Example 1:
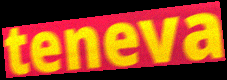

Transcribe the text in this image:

teneva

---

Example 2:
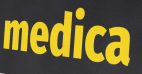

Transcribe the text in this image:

medica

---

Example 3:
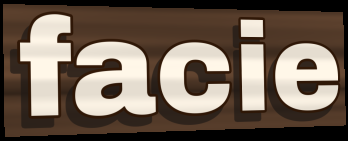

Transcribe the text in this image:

facie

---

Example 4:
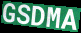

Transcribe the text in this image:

GSDMA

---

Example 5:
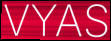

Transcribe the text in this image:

VYAS